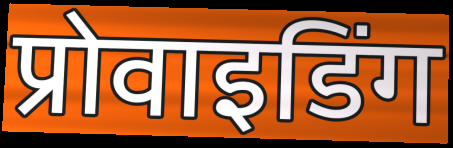
प्रोवाइडिंग